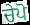
ਚੇਪੋ